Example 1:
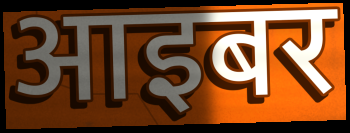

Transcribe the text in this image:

आइबर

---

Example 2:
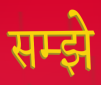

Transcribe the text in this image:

सम्झे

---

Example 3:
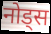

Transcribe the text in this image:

नोड्स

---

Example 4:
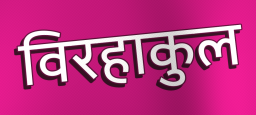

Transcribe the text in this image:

विरहाकुल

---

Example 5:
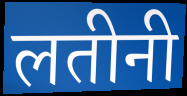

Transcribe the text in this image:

लतीनी